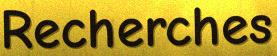
Recherches